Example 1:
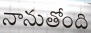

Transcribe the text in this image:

నానుతోంది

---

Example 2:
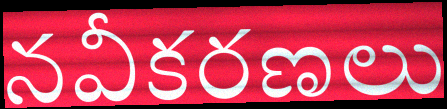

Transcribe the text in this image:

నవీకరణలు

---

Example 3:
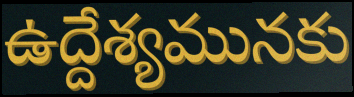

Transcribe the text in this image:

ఉద్దేశ్యమునకు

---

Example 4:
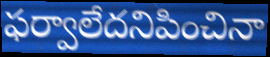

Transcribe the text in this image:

ఫర్వాలేదనిపించినా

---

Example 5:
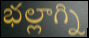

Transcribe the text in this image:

భల్లాగ్ని